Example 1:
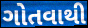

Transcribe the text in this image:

ગોતવાથી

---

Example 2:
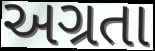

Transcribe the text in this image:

અગ્રતા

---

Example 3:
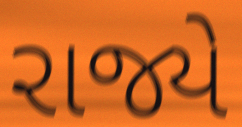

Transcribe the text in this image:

રાજ્યે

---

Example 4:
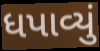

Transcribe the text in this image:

ધપાવ્યું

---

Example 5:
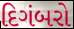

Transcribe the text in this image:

દિગંબરો